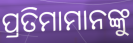
ପ୍ରତିମାମାନଙ୍କୁ